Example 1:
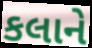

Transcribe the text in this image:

કલાને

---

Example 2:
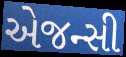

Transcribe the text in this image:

એજન્સી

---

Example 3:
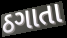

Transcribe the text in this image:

ઠગાતા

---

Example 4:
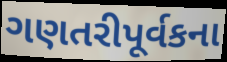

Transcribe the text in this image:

ગણતરીપૂર્વકના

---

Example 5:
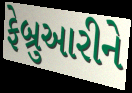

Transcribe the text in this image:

ફેબ્રુઆરીને